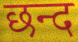
छन्द